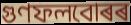
গুণফলবোৰৰ